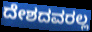
ದೇಶದವರಲ್ಲ